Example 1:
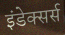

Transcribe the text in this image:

इंडेक्सर्स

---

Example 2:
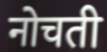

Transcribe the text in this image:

नोचती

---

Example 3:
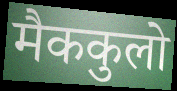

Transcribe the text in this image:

मैककुलो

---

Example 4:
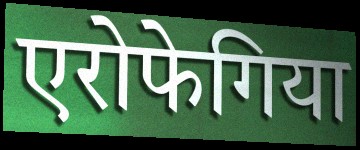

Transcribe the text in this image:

एरोफेगिया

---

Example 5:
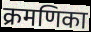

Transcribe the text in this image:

क्रमणिका